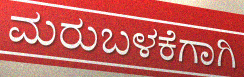
ಮರುಬಳಕೆಗಾಗಿ